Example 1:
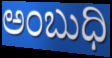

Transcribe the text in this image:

ಅಂಬುಧಿ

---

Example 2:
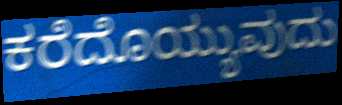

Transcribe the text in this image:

ಕರೆದೊಯ್ಯುವುದು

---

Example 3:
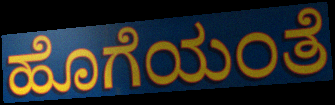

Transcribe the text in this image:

ಹೊಗೆಯಂತೆ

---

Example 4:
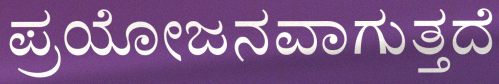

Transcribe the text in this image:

ಪ್ರಯೋಜನವಾಗುತ್ತದೆ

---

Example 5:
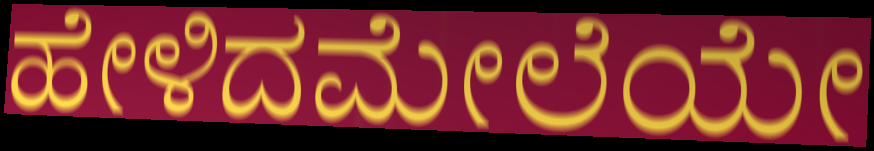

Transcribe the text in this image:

ಹೇಳಿದಮೇಲೆಯೇ